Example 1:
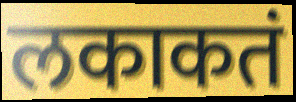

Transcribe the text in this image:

लकाकतं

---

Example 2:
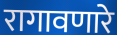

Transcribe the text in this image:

रागावणारे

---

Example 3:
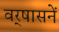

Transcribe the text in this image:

वर्षासनें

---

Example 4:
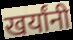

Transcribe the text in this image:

खर्यांनी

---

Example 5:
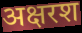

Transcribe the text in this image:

अक्षरश